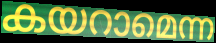
കയറാമെന്ന